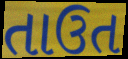
તાઉત